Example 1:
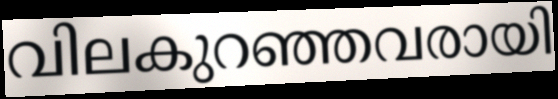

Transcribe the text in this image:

വിലകുറഞ്ഞവരായി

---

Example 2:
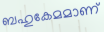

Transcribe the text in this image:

ബഹുകേമമാണ്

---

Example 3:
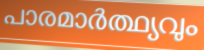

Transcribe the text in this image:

പാരമാർത്ഥ്യവും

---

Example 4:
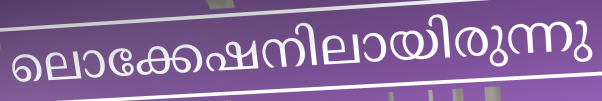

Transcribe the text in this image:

ലൊക്കേഷനിലായിരുന്നു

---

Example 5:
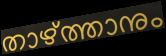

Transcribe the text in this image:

താഴ്ത്താനും